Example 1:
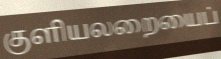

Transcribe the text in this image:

குளியலறையைப்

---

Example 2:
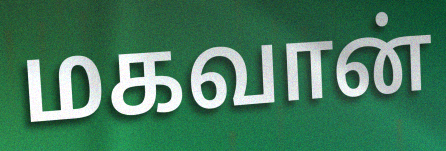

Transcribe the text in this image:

மகவான்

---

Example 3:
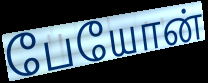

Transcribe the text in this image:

பேயோன்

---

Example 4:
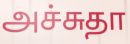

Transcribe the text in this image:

அச்சுதா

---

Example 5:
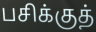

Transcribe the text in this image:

பசிக்குத்